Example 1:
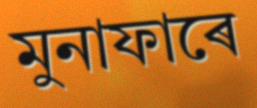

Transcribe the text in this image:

মুনাফাৰে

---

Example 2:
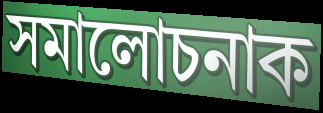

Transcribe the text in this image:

সমালোচনাক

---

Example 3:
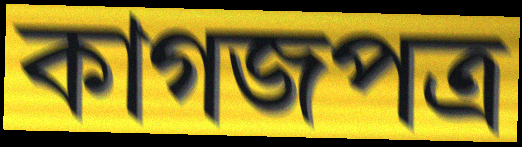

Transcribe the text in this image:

কাগজপত্ৰ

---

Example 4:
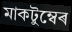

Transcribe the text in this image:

মাকটুম্বেৰ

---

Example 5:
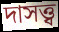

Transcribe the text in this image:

দাসত্ত্ব